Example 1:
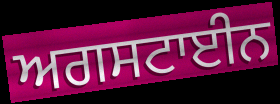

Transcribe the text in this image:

ਅਗਸਟਾਈਨ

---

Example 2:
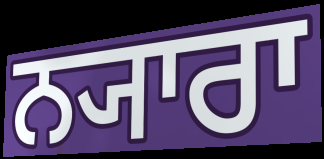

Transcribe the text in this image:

ਨ੍ਯਾਰਾ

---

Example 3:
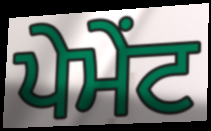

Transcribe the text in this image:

ਪੇਮੇਂਟ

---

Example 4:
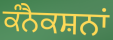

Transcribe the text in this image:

ਕੰਨੈਕਸ਼ਨਾਂ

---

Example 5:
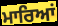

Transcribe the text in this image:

ਮਾਰਿਆਂ